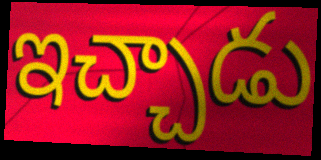
ఇచ్చాడు